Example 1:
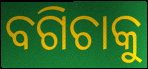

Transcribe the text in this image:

ବଗିଚାକୁ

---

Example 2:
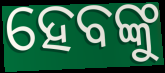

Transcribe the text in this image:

ହେବଙ୍କୁ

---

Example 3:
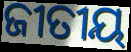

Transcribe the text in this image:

ଜୀତୀୟ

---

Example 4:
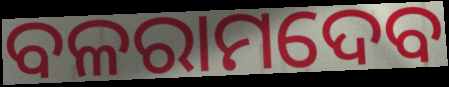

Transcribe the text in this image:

ବଳରାମଦେବ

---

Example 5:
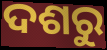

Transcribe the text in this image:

ଦଶରୁ